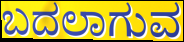
ಬದಲಾಗುವ